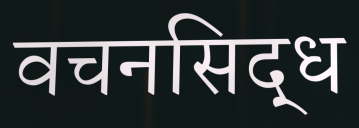
वचनसिद्ध